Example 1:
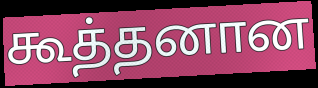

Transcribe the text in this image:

கூத்தனான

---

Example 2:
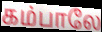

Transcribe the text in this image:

கம்பாலே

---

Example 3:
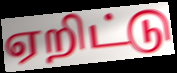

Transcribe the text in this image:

ஏறிட்டு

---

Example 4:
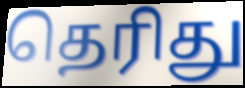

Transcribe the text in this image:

தெரிது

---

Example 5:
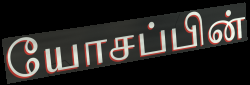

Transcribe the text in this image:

யோசப்பின்